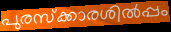
പുരസ്ക്കാരശിൽപ്പം